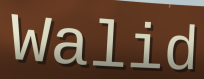
Walid